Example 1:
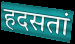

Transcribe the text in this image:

हदसतां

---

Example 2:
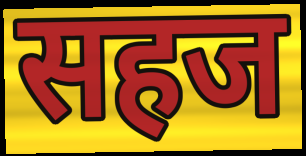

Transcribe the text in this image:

सहज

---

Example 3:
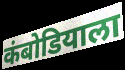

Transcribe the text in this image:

कंबोडियाला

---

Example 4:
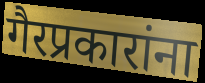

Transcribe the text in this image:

गैरप्रकारांना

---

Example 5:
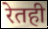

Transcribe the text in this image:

रेतही